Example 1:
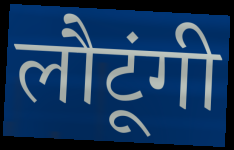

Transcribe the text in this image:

लौटूंगी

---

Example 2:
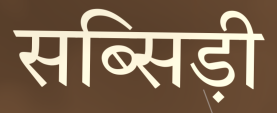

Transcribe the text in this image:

सब्सिड़ी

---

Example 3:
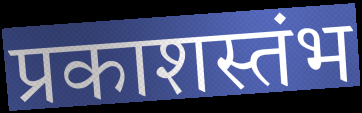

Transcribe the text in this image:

प्रकाशस्तंभ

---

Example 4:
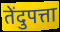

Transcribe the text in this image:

तेंदुपत्ता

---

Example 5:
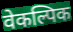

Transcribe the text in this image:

वेकल्पिक